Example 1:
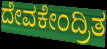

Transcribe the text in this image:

ದೇವಕೇಂದ್ರಿತ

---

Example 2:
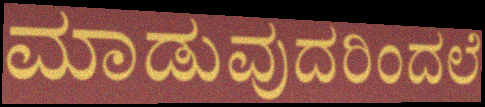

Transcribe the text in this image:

ಮಾಡುವುದರಿಂದಲೆ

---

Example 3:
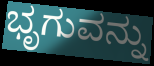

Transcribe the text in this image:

ಭೃಗುವನ್ನು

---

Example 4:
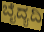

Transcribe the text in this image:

ಬೈದ್ಯದಿ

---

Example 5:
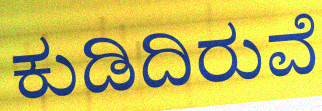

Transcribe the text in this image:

ಕುಡಿದಿರುವೆ